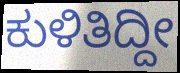
ಕುಳಿತಿದ್ದೀ